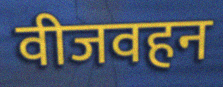
वीजवहन